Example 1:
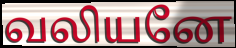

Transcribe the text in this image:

வலியனே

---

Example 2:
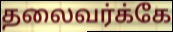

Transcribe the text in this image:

தலைவர்க்கே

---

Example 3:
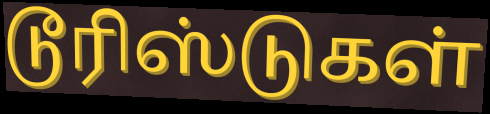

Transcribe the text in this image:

டூரிஸ்டுகள்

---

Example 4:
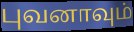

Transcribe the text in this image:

புவனாவும்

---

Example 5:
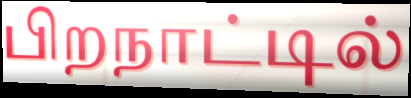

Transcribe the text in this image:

பிறநாட்டில்